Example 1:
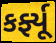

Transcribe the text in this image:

કર્ફ્યૂ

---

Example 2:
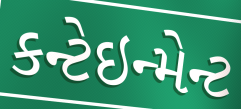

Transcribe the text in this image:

કન્ટેઇન્મેન્ટ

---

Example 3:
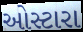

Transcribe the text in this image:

ઓસ્ટારા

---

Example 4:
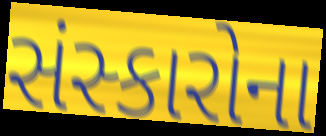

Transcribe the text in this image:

સંસ્કારોના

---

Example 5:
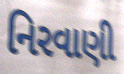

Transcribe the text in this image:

નિરવાણી